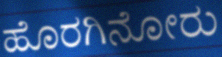
ಹೊರಗಿನೋರು